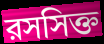
রসসিক্ত